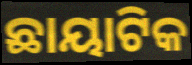
ଛାୟାଟିକ